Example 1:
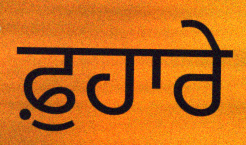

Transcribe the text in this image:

ਫ਼ੁਹਾਰੇ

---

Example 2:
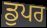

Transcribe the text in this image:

ਡੁਪਰ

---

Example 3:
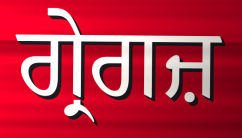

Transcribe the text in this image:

ਗ੍ਰੇਗਜ਼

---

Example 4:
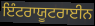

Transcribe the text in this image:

ਇੰਟਰਾਯੂਟਰਾਈਨ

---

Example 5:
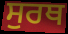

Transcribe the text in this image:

ਸੁਰਥ